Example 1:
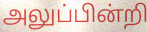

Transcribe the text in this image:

அலுப்பின்றி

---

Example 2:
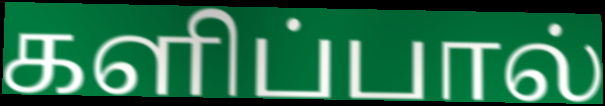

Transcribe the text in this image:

களிப்பால்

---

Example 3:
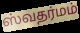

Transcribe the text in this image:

ஸ்வதர்மம்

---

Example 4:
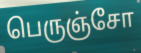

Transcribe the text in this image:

பெருஞ்சோ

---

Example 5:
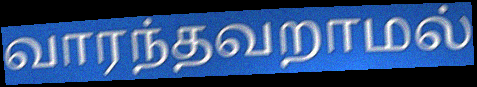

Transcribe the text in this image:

வாரந்தவறாமல்